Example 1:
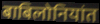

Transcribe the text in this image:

बाबिलोनियांत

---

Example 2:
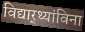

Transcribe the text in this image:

विद्यार्थ्यांविना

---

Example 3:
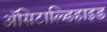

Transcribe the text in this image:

ॲसिटाल्डिहाइड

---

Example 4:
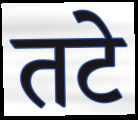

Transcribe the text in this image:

तटे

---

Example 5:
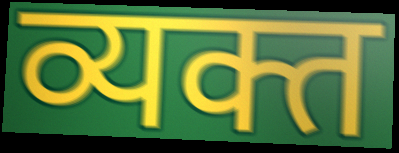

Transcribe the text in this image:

व्यक्‍त